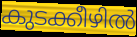
കുടക്കീഴിൽ